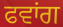
ਫਵਾਂਗ